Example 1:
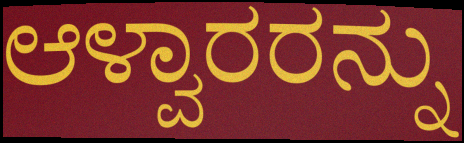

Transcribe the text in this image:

ಆಳ್ವಾರರನ್ನು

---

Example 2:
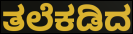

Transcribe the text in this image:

ತಲೆಕಡಿದ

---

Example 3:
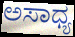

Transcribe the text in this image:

ಅಸಾಧ್ಯ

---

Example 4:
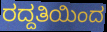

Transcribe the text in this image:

ರದ್ದತಿಯಿಂದ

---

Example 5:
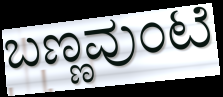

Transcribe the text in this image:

ಬಣ್ಣವುಂಟೆ